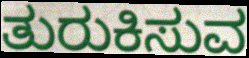
ತುರುಕಿಸುವ